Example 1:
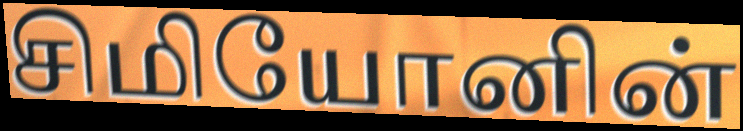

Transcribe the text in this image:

சிமியோனின்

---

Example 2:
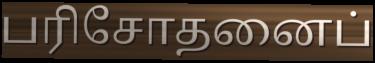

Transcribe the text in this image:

பரிசோதனைப்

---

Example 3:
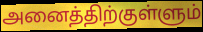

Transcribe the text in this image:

அனைத்திற்குள்ளும்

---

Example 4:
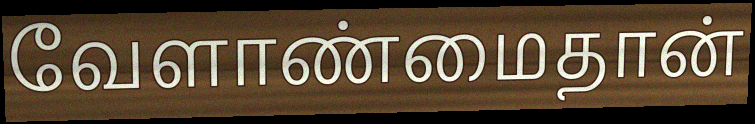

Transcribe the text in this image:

வேளாண்மைதான்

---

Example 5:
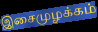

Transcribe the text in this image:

இசைமுழக்கம்